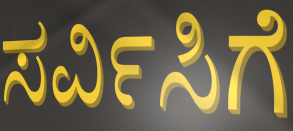
ಸರ್ವಿಸಿಗೆ